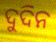
ଦୁଦିନ